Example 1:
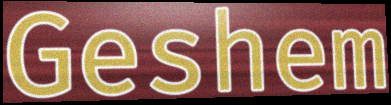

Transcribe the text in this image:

Geshem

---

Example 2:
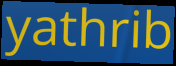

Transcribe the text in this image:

yathrib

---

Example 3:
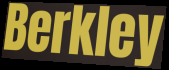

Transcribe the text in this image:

Berkley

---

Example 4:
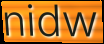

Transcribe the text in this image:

nidw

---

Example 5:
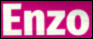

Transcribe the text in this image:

Enzo